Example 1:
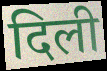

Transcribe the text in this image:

दिली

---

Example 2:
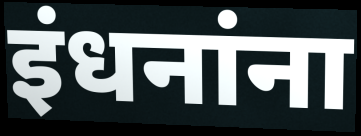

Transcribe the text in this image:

इंधनांना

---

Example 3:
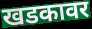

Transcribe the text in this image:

खडकावर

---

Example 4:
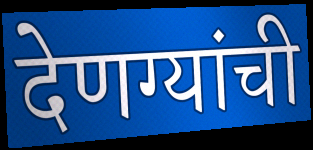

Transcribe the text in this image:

देणग्यांची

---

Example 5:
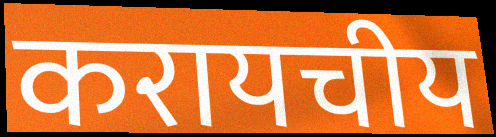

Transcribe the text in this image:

करायचीय